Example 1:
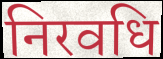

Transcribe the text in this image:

निरवधि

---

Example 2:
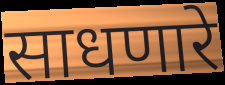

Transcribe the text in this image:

साधणारे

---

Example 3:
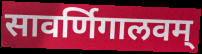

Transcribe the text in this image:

सावर्णिगालवम्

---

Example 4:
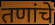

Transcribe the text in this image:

तणांचे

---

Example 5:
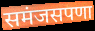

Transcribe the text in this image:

समंजसपणा